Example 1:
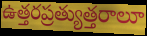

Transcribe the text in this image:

ఉత్తరప్రత్యుత్తరాలూ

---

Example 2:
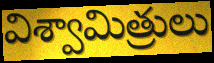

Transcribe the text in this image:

విశ్వామిత్రులు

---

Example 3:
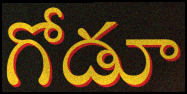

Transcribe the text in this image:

గోడూ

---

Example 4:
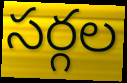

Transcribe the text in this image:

సర్గల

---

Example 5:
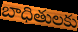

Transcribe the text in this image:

బాధితులకు